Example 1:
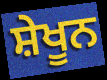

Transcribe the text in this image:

ਸ਼ੇਖੂਨ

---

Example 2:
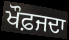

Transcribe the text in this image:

ਖੌਫ਼ਜਦਾ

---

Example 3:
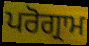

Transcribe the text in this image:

ਪਰੋਗ੍ਰਾਮ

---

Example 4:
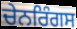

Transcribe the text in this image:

ਚੇਨਰਿੰਗਸ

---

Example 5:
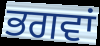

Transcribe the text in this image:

ਭਗਵਾਂ